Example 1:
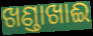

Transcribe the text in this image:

ଖଣ୍ଡାଖାଈ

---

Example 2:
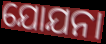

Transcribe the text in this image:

ଯୋଯନା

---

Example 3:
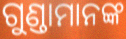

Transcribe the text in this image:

ଗୁଣ୍ଡାମାନଙ୍କ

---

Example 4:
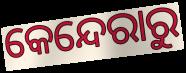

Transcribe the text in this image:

କେନ୍ଦେରାରୁ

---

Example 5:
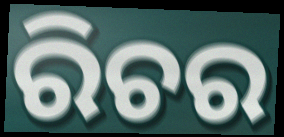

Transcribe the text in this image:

ରିଚର